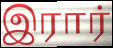
இரார்